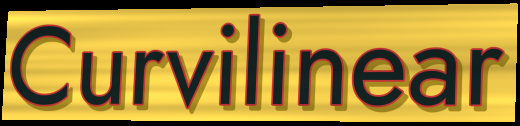
Curvilinear